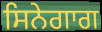
ਸਿਨੇਗਾਗ